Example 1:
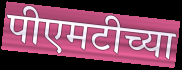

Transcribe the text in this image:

पीएमटीच्या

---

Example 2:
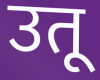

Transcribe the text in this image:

उतू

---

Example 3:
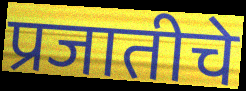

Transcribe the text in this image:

प्रजातीचे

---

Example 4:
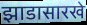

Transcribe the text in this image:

झाडासारखे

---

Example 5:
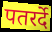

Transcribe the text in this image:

पतरर्दे